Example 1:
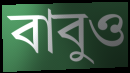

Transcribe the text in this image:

বাবুও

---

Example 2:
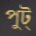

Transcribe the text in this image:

পুট্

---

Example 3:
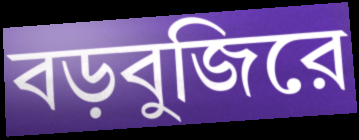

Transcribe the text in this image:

বড়বুজিরে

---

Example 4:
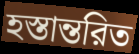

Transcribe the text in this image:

হস্তান্তরিত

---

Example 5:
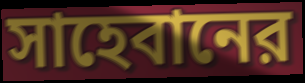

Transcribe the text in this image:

সাহেবানের